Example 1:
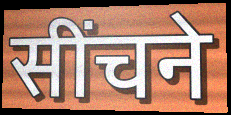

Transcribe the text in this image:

सींचने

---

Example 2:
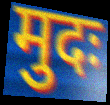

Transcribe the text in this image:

मुदः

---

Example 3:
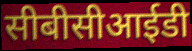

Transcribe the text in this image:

सीबीसीआईडी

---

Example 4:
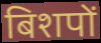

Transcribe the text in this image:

बिशपों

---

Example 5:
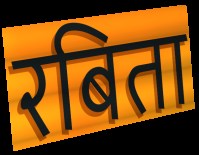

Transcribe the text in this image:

रबिता